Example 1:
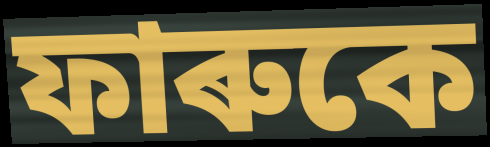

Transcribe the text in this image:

ফাৰুকে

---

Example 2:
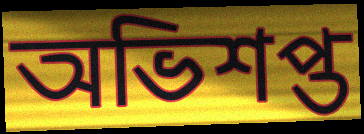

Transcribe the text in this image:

অভিশপ্ত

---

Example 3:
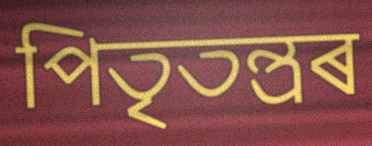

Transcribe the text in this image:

পিতৃতন্ত্ৰৰ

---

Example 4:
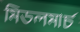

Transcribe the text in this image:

মিডলমাৰ্চ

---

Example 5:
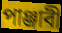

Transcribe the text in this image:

পাঞ্জাবী